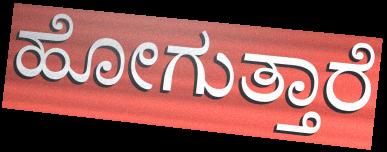
ಹೋಗುತ್ತಾರೆ